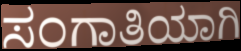
ಸಂಗಾತಿಯಾಗಿ